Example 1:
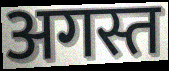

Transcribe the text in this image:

अगस्त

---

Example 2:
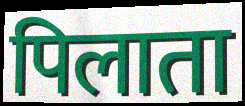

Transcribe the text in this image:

पिलाता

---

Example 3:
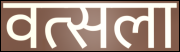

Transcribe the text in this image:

वत्‍सला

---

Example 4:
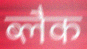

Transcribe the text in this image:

ब्लैक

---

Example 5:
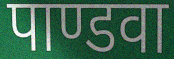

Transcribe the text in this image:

पाण्डवा